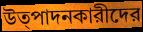
উত্পাদনকারীদের